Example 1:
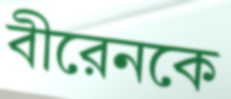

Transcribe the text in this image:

বীরেনকে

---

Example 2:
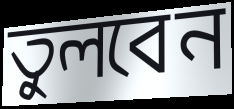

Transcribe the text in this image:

তুলবেন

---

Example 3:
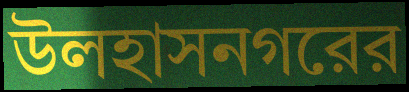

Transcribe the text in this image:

উলহাসনগরের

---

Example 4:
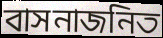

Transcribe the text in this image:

বাসনাজনিত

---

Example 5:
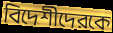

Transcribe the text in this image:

বিদেশীদেরকে